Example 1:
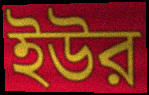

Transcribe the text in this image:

ইউর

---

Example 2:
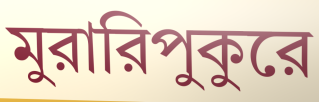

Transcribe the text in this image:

মুরারিপুকুরে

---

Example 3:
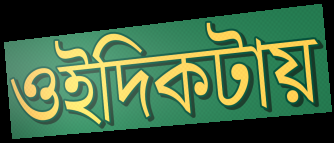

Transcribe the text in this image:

ওইদিকটায়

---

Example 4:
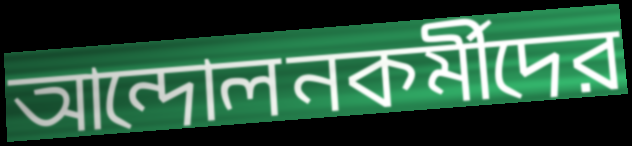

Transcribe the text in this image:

আন্দোলনকর্মীদের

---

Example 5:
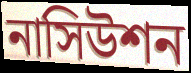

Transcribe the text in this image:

নাসিউশন